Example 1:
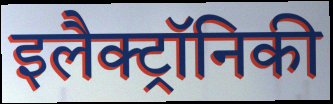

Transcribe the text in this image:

इलैक्ट्रॉनिकी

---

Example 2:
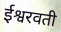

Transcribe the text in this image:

ईश्वरवती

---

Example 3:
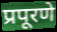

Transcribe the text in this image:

प्रपूरणे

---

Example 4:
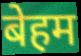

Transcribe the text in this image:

बेहम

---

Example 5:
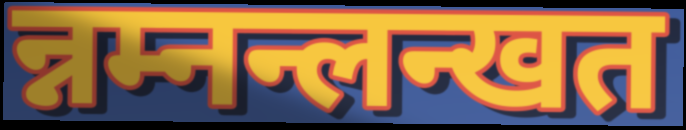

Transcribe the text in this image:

न्नम्नन्लन्खत